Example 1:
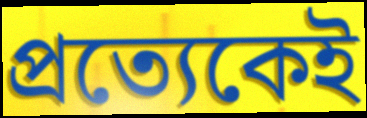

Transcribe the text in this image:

প্ৰত্যেকেই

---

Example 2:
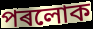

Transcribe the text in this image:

পৰলোক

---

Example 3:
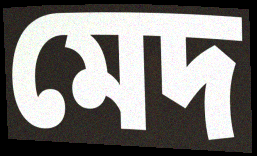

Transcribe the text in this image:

মেদ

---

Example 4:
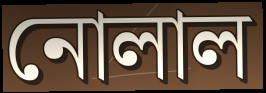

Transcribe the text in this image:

নোলাল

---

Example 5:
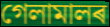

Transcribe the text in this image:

গেলামালৰ